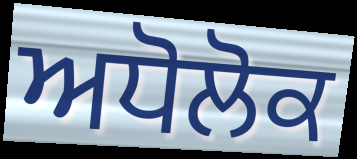
ਅਧੋਲੋਕ